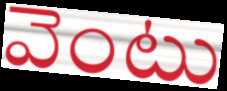
వెంటు